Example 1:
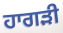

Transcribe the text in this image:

ਹਾਗੜੀ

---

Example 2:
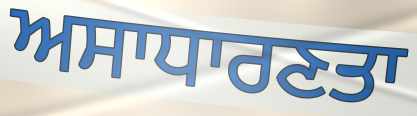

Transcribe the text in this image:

ਅਸਾਧਾਰਣਤਾ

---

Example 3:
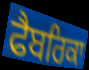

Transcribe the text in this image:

ਫੈਬਰਿਕਾ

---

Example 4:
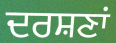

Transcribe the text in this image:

ਦਰਸ਼ਣਾਂ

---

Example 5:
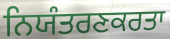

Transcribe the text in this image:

ਨਿਯੰਤਰਣਕਰਤਾ